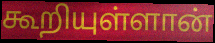
கூறியுள்ளான்